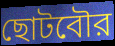
ছোটবৌর